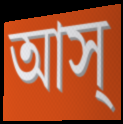
আস্